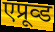
एप्रूव्ड